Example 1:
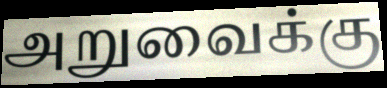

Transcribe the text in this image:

அறுவைக்கு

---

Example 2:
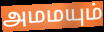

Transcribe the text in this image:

அமமயும்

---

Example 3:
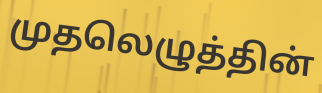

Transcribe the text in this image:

முதலெழுத்தின்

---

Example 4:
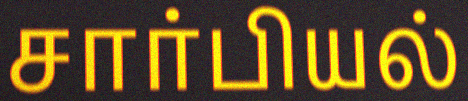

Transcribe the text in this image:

சார்பியல்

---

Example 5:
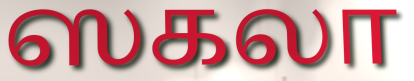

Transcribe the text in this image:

ஸகலா